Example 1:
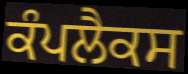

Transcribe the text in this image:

ਕੰਪਲੈਕਸ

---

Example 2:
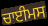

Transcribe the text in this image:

ਚਾਈਮਸ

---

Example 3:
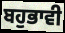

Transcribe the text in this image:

ਬਹੁਭਾਵੀ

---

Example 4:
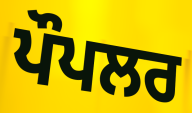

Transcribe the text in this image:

ਪੌਪਲਰ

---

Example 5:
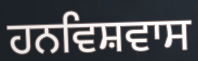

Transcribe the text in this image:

ਹਨਵਿਸ਼ਵਾਸ